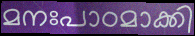
മനഃപാഠമാക്കി